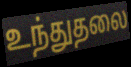
உந்துதலை